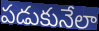
పడుకునేలా